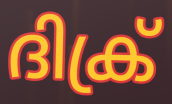
ദിക്ര്